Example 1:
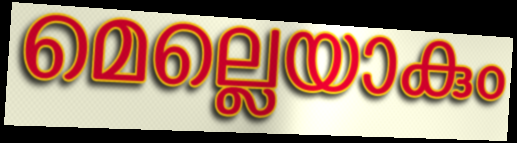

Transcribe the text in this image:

മെല്ലെയാകും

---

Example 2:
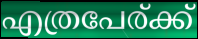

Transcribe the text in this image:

എത്രപേര്ക്ക്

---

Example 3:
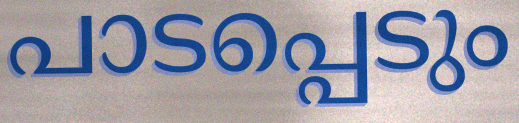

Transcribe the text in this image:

പാടപ്പെടും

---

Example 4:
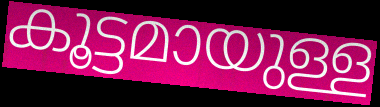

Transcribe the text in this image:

കൂട്ടമായുള്ള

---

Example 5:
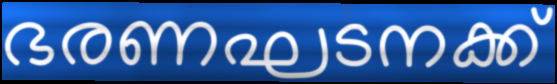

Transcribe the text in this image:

ഭരണഘടനക്ക്